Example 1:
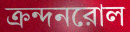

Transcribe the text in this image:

ক্রন্দনরোল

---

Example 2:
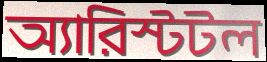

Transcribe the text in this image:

অ্যারিস্টটল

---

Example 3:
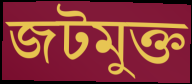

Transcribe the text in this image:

জটমুক্ত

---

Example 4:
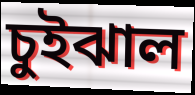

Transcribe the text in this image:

চুইঝাল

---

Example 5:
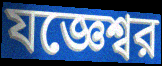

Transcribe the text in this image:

যজ্ঞেশ্বর